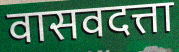
वासवदत्ता